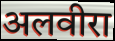
अलवीरा